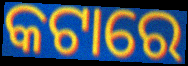
କଟାରେ